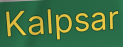
Kalpsar